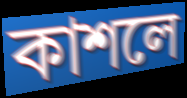
কাশলে